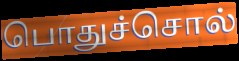
பொதுச்சொல்